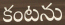
కంటను